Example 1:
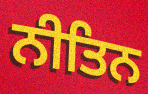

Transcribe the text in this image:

ਨੀਤਿਨ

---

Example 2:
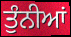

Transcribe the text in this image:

ਤੁੰਨੀਆਂ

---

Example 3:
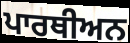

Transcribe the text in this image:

ਪਾਰਥੀਅਨ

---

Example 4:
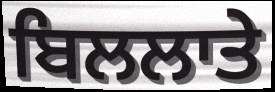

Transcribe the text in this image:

ਬਿਲਲਾਤੇ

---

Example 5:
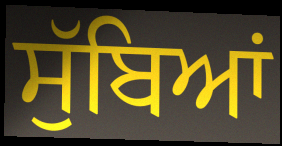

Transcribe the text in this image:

ਸੁੱਬਿਆਂ